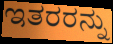
ಇತರರನ್ನು